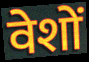
वेशों